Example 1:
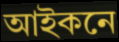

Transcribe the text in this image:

আইকনে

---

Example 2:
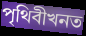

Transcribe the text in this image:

পৃথিবীখনত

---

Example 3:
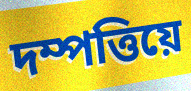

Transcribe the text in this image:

দম্পত্তিয়ে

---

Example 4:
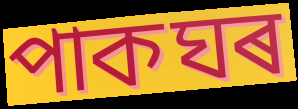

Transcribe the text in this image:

পাকঘৰ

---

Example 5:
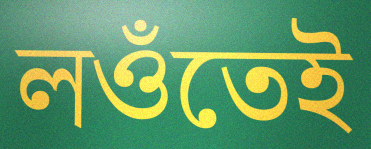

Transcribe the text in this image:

লওঁতেই